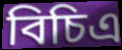
বিচিএ